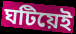
ঘটিয়েই